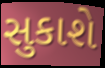
સુકાશે